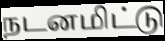
நடனமிட்டு